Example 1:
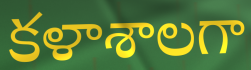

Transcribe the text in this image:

కళాశాలగా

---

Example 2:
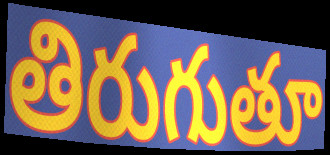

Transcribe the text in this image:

తిరుగుతూ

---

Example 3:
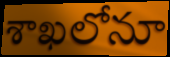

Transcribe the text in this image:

శాఖలోనూ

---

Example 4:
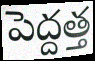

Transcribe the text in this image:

పెద్దత్త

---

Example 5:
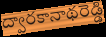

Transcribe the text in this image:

ద్వారకానాథరెడ్డి